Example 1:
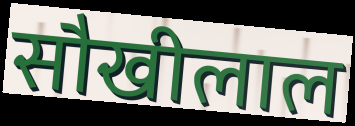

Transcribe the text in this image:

सौखीलाल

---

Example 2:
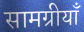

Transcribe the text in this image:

सामग्रीयाँ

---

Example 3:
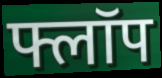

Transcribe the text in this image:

फ्लॉप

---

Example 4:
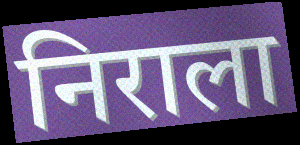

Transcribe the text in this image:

निराला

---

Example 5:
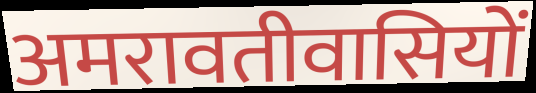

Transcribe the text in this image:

अमरावतीवासियों